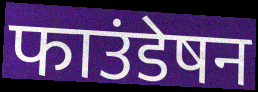
फाउंडेषन